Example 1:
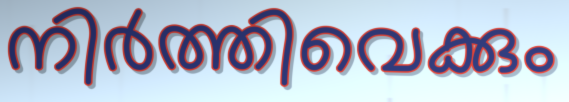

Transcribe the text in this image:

നിർത്തിവെക്കും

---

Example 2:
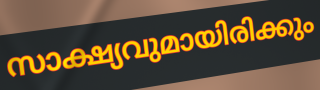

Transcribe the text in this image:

സാക്ഷ്യവുമായിരിക്കും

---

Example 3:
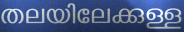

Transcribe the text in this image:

തലയിലേക്കുള്ള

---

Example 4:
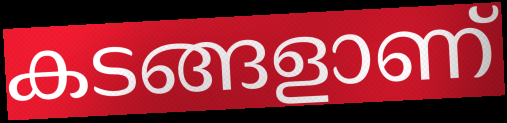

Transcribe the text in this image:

കടങ്ങളാണ്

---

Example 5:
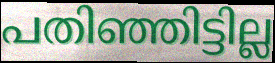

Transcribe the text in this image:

പതിഞ്ഞിട്ടില്ല